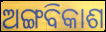
ଅଙ୍ଗବିକାଶ